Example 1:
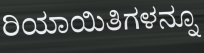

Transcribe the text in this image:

ರಿಯಾಯಿತಿಗಳನ್ನೂ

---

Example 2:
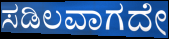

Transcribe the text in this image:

ಸಡಿಲವಾಗದೇ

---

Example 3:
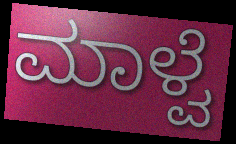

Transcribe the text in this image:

ಮಾಳ್ವೆ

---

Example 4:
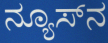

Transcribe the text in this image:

ನ್ಯೂಸ್‌ನ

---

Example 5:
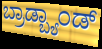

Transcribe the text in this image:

ಬ್ರಾಡ್ಬ್ಯಾಂಡ್